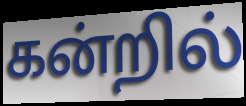
கன்றில்